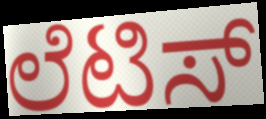
ಲೆಟಿಸ್